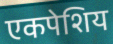
एकपेशिय